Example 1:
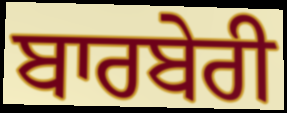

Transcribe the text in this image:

ਬਾਰਬੇਰੀ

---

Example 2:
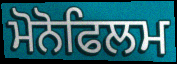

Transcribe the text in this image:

ਮੋਨੋਫਿਲਮ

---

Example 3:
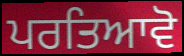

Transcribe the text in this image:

ਪਰਤਿਆਵੋ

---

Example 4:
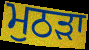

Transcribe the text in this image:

ਮੁਠੜਾ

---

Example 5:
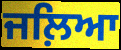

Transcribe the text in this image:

ਜਲ਼ਿਆ